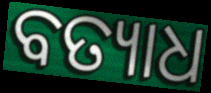
ବତ୍ୟାଧ